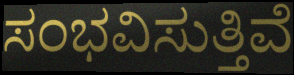
ಸಂಭವಿಸುತ್ತಿವೆ